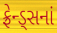
ફ્રેન્ડ્સનાં